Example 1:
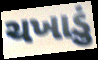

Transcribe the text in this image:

ચખાડું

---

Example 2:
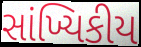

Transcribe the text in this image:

સાંખ્યિકીય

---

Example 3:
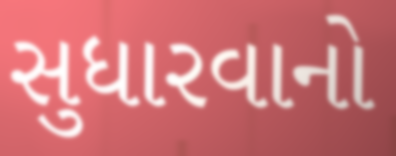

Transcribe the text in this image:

સુધારવાનો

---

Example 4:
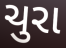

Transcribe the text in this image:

ચુરા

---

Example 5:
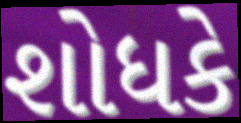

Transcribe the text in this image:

શોધકે